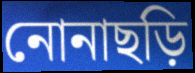
নোনাছড়ি